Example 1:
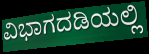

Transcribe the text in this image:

ವಿಭಾಗದಡಿಯಲ್ಲಿ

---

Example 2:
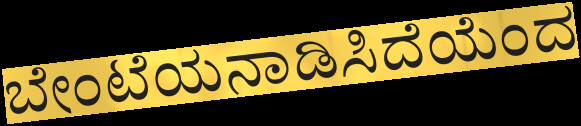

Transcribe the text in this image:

ಬೇಂಟೆಯನಾಡಿಸಿದೆಯೆಂದ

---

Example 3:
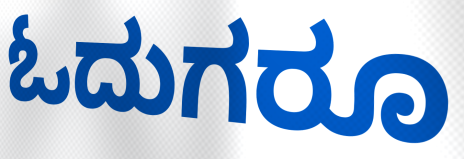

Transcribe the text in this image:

ಓದುಗರೂ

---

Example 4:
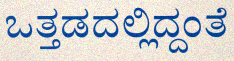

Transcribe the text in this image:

ಒತ್ತಡದಲ್ಲಿದ್ದಂತೆ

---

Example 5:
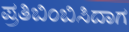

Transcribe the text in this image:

ಪ್ರತಿಬಿಂಬಿಸಿದಾಗ